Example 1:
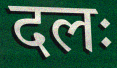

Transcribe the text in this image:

दलः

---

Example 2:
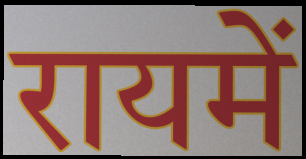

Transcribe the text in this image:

रायमें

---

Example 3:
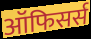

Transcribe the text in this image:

ऑफिसर्स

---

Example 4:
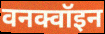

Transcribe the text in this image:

वनक्वॉइन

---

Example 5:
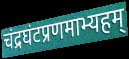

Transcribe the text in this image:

चंद्रघंटप्रणमाभ्यहम्